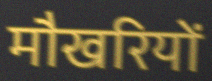
मौखरियों